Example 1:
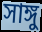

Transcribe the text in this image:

সাঙ্গু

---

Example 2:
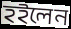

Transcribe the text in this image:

হইলেন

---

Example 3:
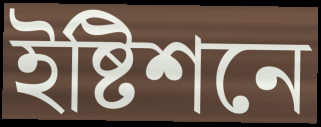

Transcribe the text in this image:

ইষ্টিশনে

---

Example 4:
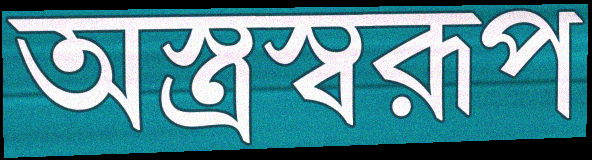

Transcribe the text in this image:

অস্ত্রস্বরূপ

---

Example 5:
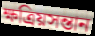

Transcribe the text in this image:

ক্ষত্রিয়সন্তান